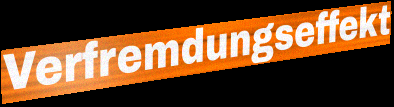
Verfremdungseffekt